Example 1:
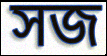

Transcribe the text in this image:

সজ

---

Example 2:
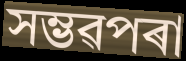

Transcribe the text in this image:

সম্ভৱপৰা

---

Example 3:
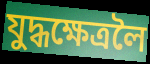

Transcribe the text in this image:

যুদ্ধক্ষেত্ৰলৈ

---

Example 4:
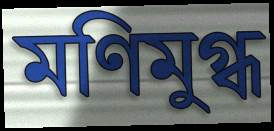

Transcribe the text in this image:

মণিমুগ্ধ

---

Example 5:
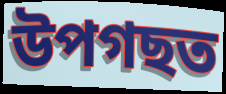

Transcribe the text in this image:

উপগছত